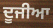
ਦੂਜੀਆ